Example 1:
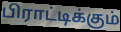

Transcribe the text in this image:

பிராட்டிக்கும்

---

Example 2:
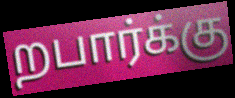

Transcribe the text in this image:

றபார்க்கு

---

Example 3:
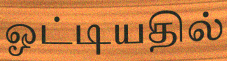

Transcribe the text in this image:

ஓட்டியதில்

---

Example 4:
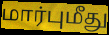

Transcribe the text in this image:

மார்புமீது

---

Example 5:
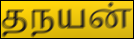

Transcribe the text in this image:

தநயன்